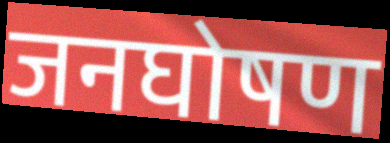
जनघोषण